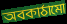
অবকাঠামো